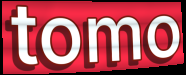
tomo